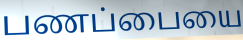
பணப்பையை